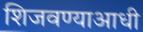
शिजवण्याआधी